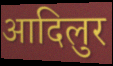
आदिलुर